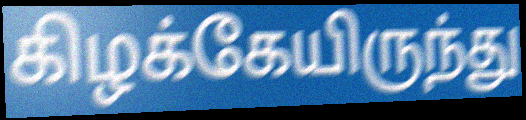
கிழக்கேயிருந்து